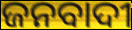
ଜନବାଦୀ